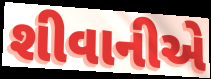
શીવાનીએ